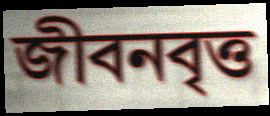
জীবনবৃত্ত